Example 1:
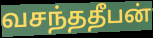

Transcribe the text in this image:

வசந்ததீபன்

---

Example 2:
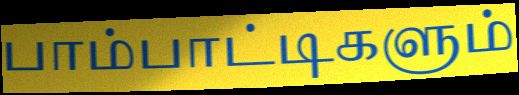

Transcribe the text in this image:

பாம்பாட்டிகளும்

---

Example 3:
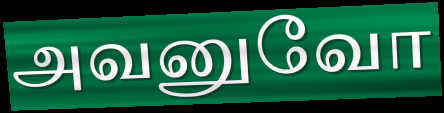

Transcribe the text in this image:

அவனுவோ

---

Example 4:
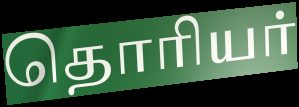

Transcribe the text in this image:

தொரியர்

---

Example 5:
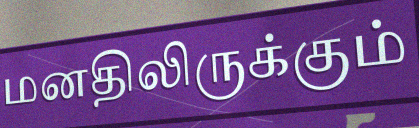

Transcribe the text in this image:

மனதிலிருக்கும்